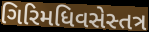
ગિરિમધિવસેસ્તત્ર